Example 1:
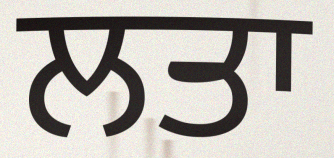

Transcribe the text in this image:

ਲਤਾ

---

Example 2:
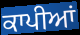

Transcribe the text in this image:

ਕਾਪੀਆਂ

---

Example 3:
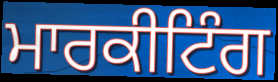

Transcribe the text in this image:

ਮਾਰਕੀਟਿੰਗ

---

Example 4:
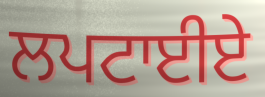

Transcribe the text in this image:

ਲਪਟਾਈਏ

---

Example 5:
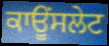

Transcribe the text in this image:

ਕਾਊਂਸਲੇਟ